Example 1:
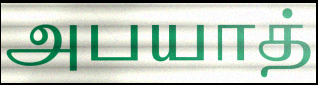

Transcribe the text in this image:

அபயாத்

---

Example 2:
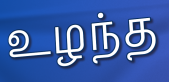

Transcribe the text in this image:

உழந்த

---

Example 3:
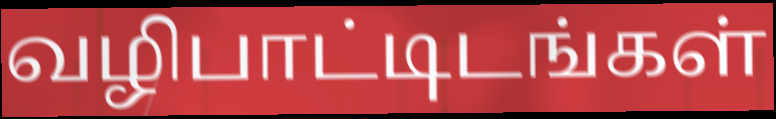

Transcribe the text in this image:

வழிபாட்டிடங்கள்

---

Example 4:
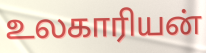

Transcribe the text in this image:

உலகாரியன்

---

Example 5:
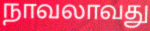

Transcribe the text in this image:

நாவலாவது